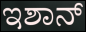
ಇಶಾನ್